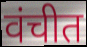
वंचीत